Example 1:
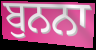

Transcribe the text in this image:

ਬੁਨਨਾ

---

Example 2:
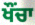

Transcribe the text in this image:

ਖੌੰਚਾ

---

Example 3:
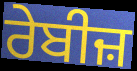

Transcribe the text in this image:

ਰੇਬੀਜ਼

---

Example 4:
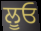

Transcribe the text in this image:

ਲੂਓ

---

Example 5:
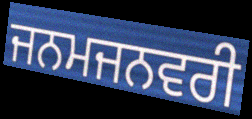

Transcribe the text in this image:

ਜਨਮਜਨਵਰੀ